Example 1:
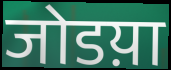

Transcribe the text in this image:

जोडय़ा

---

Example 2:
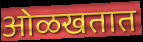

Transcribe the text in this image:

ओळखतात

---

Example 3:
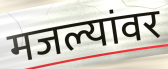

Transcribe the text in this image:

मजल्यांवर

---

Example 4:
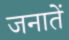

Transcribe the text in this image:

जनातें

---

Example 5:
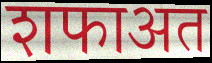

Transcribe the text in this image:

शफाअत